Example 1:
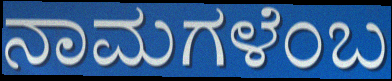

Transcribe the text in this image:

ನಾಮಗಳೆಂಬ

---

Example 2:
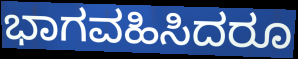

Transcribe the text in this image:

ಭಾಗವಹಿಸಿದರೂ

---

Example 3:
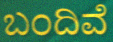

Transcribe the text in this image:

ಬಂದಿವೆ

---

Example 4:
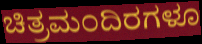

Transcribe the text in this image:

ಚಿತ್ರಮಂದಿರಗಳೂ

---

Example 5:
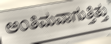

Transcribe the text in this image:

ಅಂತಿಮವಾಗುತ್ತಿತ್ತು